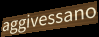
aggivessano